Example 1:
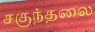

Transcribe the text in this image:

சகுந்தலை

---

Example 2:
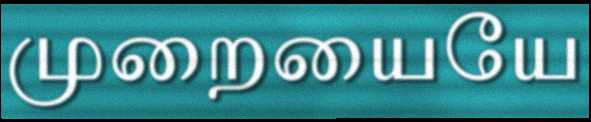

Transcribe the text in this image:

முறையையே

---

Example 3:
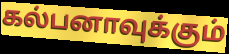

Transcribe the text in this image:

கல்பனாவுக்கும்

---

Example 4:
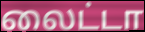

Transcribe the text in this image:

லைட்டா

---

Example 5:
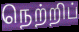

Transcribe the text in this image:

நெற்றிப்